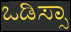
ಒಡಿಸ್ಸಾ